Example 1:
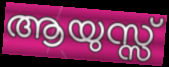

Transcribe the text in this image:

ആയുസ്സ്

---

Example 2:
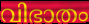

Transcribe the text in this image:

വിഭാതം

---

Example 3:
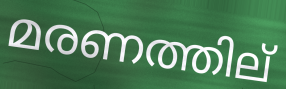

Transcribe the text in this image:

മരണത്തില്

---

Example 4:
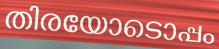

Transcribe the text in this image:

തിരയോടൊപ്പം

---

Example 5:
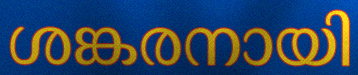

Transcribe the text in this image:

ശങ്കരനായി